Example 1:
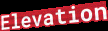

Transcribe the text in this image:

Elevation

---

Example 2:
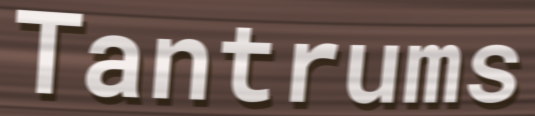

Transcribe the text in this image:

Tantrums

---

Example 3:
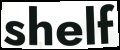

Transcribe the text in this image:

shelf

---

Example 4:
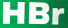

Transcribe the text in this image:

HBr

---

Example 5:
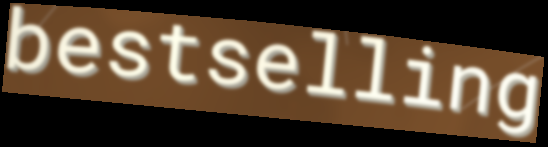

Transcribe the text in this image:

bestselling